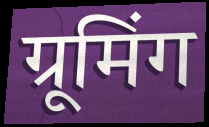
ग्रूमिंग